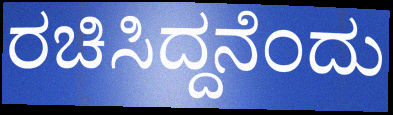
ರಚಿಸಿದ್ದನೆಂದು